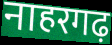
नाहरगढ़